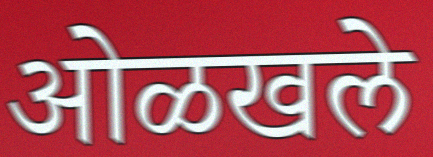
ओळखले